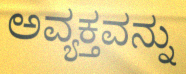
ಅವ್ಯಕ್ತವನ್ನು